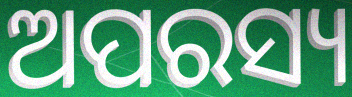
ଅପରସ୍ୟ